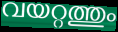
വയറ്റത്തും